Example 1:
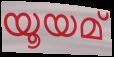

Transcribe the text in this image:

യൂയമ്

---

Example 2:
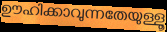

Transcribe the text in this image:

ഊഹിക്കാവുന്നതേയുള്ളൂ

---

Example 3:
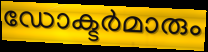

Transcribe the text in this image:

ഡോക്ടർമാരും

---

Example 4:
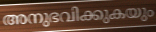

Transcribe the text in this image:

അനുഭവിക്കുകയും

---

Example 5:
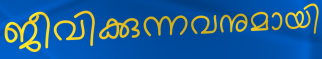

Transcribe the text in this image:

ജീവിക്കുന്നവനുമായി